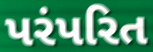
પરંપરિત